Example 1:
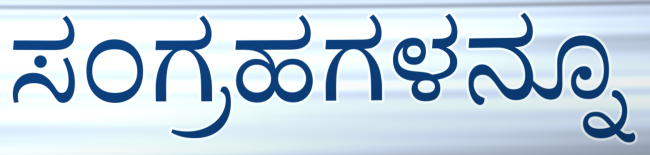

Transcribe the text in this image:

ಸಂಗ್ರಹಗಳನ್ನೂ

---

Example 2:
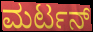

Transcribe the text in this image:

ಮರ್ಟನ್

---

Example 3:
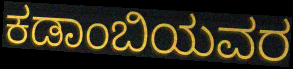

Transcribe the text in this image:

ಕಡಾಂಬಿಯವರ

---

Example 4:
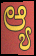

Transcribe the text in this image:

ಆ್ಯ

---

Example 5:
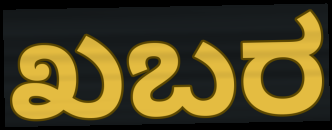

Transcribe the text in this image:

ಖಬರ